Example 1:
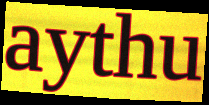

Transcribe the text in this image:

aythu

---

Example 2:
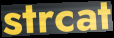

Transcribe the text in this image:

strcat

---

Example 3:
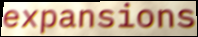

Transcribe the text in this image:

expansions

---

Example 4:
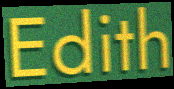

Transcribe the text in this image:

Edith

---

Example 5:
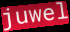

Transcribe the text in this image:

juwel